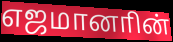
எஜமானரின்